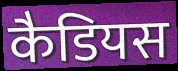
कैडियस